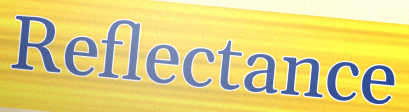
Reflectance